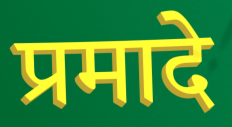
प्रमादे